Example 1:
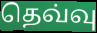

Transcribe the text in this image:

தெவ்வு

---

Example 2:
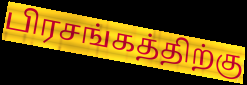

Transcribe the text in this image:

பிரசங்கத்திற்கு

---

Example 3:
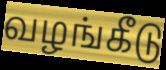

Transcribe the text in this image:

வழங்கீடு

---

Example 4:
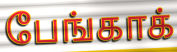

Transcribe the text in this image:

பேங்காக்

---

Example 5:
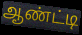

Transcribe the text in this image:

ஆண்ட்டி